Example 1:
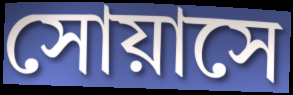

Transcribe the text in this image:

সোয়াসে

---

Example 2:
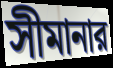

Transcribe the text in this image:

সীমানার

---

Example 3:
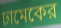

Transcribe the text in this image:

ঢামেকের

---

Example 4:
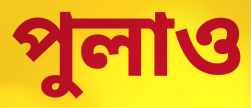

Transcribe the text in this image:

পুলাও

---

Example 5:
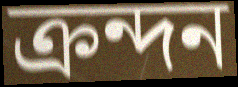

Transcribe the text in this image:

ক্রন্দন